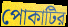
পোকাটির